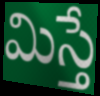
మిస్తే